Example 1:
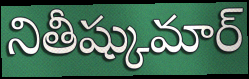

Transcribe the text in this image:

నితీష్కుమార్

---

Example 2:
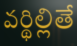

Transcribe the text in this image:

వర్థిల్లితే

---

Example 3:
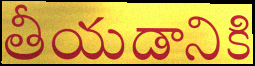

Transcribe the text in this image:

తీయడానికి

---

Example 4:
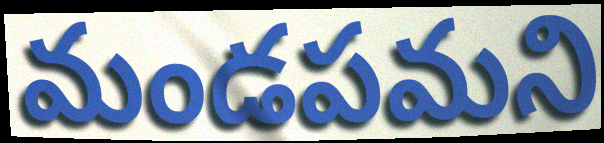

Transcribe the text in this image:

మండపమని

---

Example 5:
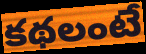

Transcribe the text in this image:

కథలంటే